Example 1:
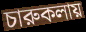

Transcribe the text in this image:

চারুকলায়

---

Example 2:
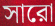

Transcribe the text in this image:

সারো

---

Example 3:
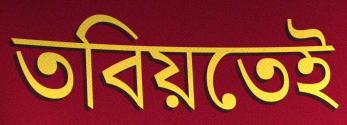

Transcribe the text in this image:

তবিয়তেই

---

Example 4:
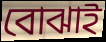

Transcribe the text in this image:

বোঝাই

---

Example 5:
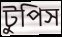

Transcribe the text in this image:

টুপিস